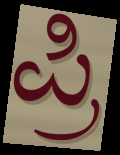
ಪ್ರಿ